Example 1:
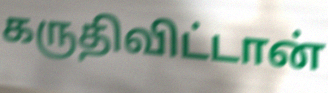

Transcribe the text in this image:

கருதிவிட்டான்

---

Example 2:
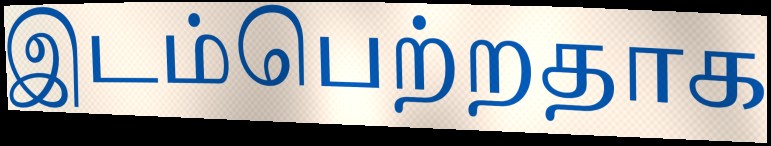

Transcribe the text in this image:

இடம்பெற்றதாக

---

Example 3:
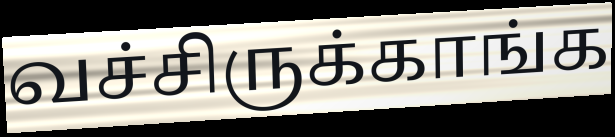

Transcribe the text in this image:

வச்சிருக்காங்க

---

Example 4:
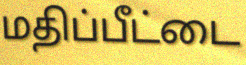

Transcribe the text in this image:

மதிப்பீட்டை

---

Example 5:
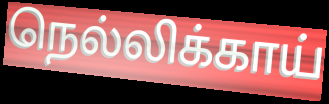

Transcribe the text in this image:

நெல்லிக்காய்